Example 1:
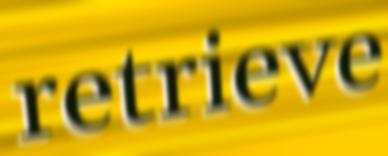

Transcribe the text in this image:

retrieve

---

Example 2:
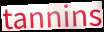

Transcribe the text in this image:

tannins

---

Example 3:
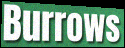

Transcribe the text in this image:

Burrows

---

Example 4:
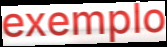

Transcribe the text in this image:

exemplo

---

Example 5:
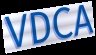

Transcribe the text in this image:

VDCA